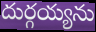
దుర్గయ్యను